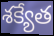
శక్యేత